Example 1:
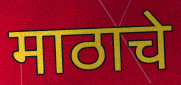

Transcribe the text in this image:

माठाचे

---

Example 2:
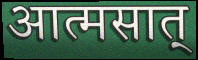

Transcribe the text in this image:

आत्मसात्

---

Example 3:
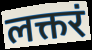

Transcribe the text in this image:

लक्तरं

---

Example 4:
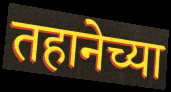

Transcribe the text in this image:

तहानेच्या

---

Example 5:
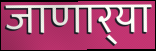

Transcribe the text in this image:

जाणार्‍या